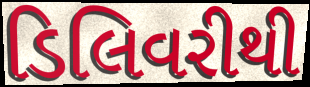
ડિલિવરીથી